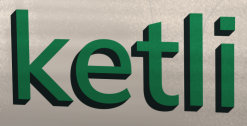
ketli